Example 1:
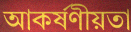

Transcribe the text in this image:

আকর্ষণীয়তা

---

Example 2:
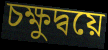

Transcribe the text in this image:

চক্ষুদ্বয়ে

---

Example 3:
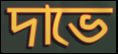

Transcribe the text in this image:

দাভে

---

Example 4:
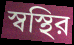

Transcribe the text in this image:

স্বস্থির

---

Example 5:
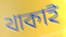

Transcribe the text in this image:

থাকাই